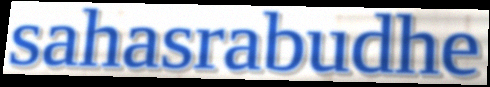
sahasrabudhe